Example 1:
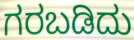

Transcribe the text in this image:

ಗರಬಡಿದು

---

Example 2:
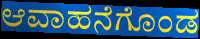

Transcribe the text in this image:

ಆವಾಹನೆಗೊಂಡ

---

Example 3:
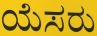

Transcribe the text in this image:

ಯೆಸರು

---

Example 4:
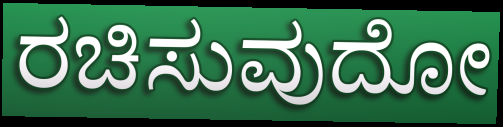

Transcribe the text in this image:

ರಚಿಸುವುದೋ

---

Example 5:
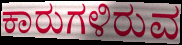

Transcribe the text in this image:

ಕಾರುಗಳಿರುವ